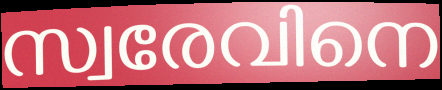
സ്വരേവിനെ